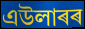
এউলাৰৰ